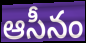
ఆసీనం